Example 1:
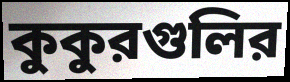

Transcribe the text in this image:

কুকুরগুলির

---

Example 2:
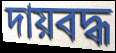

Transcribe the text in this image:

দায়বদ্ধ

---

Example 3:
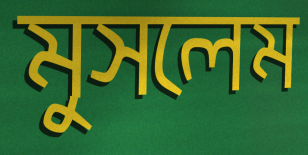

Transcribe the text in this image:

মুসলেম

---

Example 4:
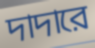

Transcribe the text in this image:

দাদারে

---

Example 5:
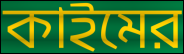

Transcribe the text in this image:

কাইমের